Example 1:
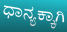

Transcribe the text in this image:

ಧಾನ್ಯಕ್ಕಾಗಿ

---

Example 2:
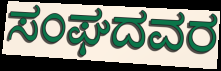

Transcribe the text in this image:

ಸಂಘದವರ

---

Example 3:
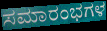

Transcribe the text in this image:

ಸಮಾರಂಭಗಳ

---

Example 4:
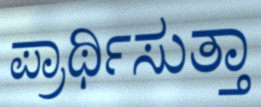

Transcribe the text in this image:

ಪ್ರಾರ್ಥಿಸುತ್ತಾ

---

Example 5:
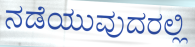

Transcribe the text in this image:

ನಡೆಯುವುದರಲ್ಲಿ